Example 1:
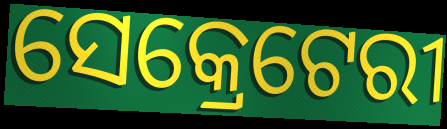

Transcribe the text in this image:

ସେକ୍ରେଟେରୀ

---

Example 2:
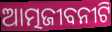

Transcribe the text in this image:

ଆତ୍ମଜୀବନୀଟି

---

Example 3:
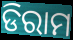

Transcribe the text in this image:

ଡିରାମ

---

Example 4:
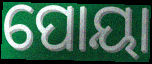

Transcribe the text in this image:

ପୋୟା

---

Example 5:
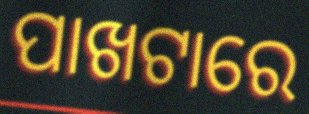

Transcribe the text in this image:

ପାଖଟାରେ